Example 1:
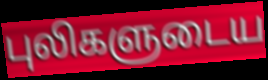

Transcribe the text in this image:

புலிகளுடைய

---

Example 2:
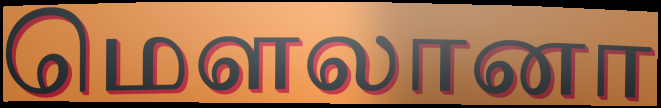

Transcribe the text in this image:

மௌலானா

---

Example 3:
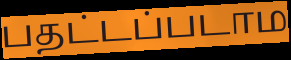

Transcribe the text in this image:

பதட்டப்படாம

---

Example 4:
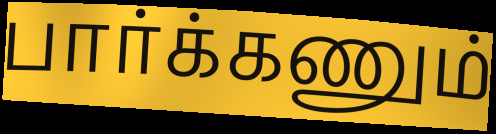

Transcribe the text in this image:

பார்க்கணும்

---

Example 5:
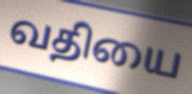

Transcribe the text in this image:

வதியை